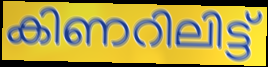
കിണറിലിട്ട്